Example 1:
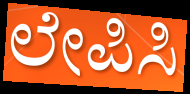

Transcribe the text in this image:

ಲೇಪಿಸಿ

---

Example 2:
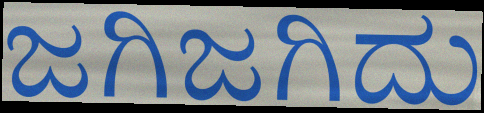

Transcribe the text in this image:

ಜಗಿಜಗಿದು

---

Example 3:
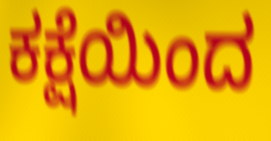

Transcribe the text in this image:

ಕಕ್ಷೆಯಿಂದ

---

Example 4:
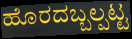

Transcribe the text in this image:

ಹೊರದಬ್ಬಲ್ಪಟ್ಟ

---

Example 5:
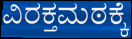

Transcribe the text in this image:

ವಿರಕ್ತಮಠಕ್ಕೆ